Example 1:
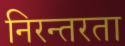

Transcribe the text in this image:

निरन्तरता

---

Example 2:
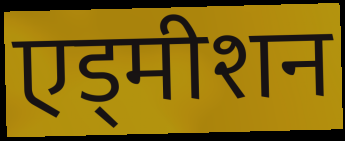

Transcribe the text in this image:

एड्मीशन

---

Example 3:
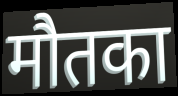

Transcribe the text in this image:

मौतका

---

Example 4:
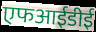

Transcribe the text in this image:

एफआईडीई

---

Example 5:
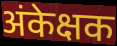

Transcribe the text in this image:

अंकेक्षक